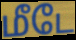
மீடே